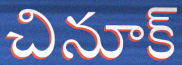
చినూక్